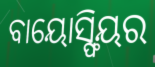
ବାୟୋସ୍ଫିୟର